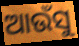
ଆଉଁସୁ